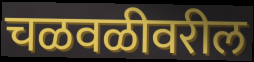
चळवळीवरील